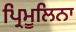
ਪ੍ਰਿਮੂਲਿਨਾ